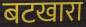
बटखारा